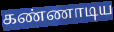
கண்ணாடிய